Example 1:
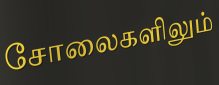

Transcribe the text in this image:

சோலைகளிலும்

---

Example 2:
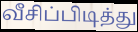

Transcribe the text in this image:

வீசிப்பிடித்து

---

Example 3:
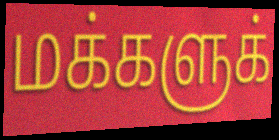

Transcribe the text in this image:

மக்களுக்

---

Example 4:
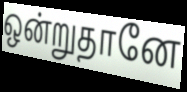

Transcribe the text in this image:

ஒன்றுதானே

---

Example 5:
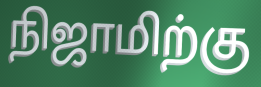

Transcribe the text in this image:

நிஜாமிற்கு